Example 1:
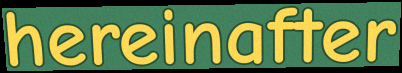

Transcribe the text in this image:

hereinafter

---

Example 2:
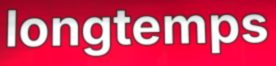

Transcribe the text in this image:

longtemps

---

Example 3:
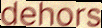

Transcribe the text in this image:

dehors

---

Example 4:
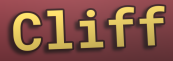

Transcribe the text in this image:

Cliff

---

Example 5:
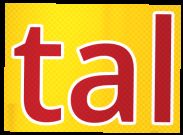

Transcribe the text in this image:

tal